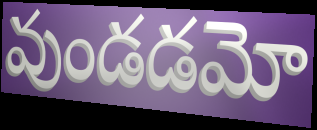
వుండడమో